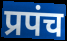
प्रपंच